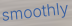
smoothly